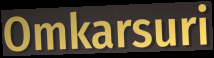
Omkarsuri